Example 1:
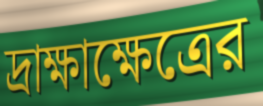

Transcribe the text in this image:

দ্রাক্ষাক্ষেত্রের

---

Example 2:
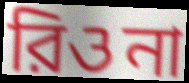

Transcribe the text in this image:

রিওনা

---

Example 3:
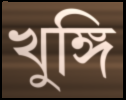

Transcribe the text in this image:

খুঙ্গি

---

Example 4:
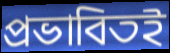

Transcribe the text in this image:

প্রভাবিতই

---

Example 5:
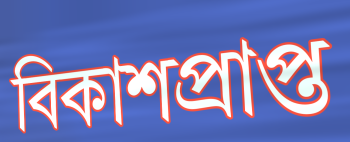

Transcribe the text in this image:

বিকাশপ্রাপ্ত